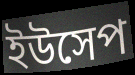
ইউসেপ